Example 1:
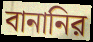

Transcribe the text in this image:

বানানির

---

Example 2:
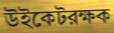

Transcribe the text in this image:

উইকেটরক্ষক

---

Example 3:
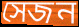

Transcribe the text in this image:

সেজন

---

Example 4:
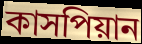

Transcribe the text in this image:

কাসপিয়ান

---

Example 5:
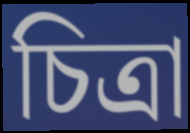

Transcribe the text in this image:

চিত্রা